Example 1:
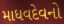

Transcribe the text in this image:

માધવદેવનો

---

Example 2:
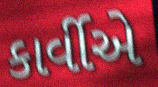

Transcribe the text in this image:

કાર્વીએ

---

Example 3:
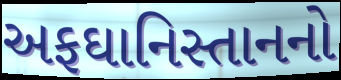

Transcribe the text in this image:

અફઘાનિસ્તાનનો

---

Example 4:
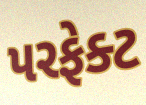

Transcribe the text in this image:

પરફેક્ટ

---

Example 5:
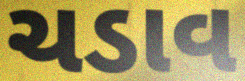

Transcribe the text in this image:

ચડાવ